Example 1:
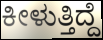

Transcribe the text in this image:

ಕೀಳುತ್ತಿದ್ದೆ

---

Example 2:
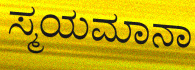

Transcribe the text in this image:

ಸ್ಮಯಮಾನಾ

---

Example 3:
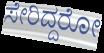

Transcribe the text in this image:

ಸೇರಿದ್ದರೋ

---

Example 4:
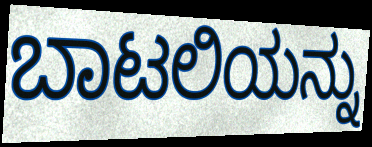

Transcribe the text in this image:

ಬಾಟಲಿಯನ್ನು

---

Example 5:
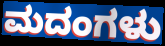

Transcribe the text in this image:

ಮದಂಗಳು